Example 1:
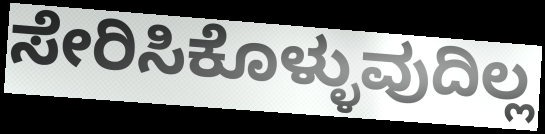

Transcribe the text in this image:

ಸೇರಿಸಿಕೊಳ್ಳುವುದಿಲ್ಲ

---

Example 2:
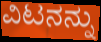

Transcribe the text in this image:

ವಿಟನನ್ನು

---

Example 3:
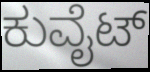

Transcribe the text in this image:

ಕುವೈಟ್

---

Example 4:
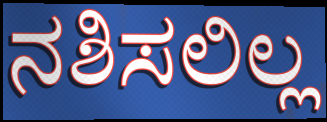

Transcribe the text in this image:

ನಶಿಸಲಿಲ್ಲ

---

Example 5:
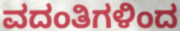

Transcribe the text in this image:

ವದಂತಿಗಳಿಂದ